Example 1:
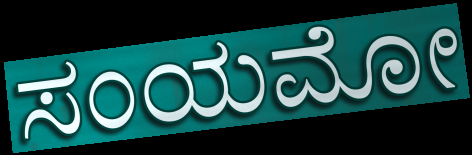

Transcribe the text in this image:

ಸಂಯಮೋ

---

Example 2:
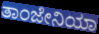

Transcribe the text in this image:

ತಾಂಜೇನಿಯಾ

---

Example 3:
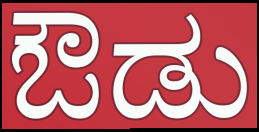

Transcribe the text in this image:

ಔಡು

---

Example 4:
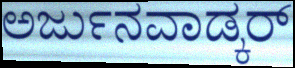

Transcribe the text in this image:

ಅರ್ಜುನವಾಡ್ಕರ್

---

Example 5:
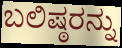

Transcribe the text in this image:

ಬಲಿಷ್ಠರನ್ನು